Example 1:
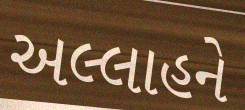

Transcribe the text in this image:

અલ્લાહને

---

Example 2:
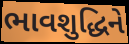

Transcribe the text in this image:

ભાવશુદ્ધિને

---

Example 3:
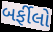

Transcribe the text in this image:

બર્ફીલો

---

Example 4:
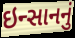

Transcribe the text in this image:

ઇન્સાનનું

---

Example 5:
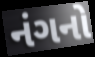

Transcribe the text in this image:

નંગનો